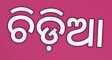
ଚିଡ଼ିଆ